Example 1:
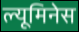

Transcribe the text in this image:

ल्यूमिनेस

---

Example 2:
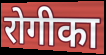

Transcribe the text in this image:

रोगीका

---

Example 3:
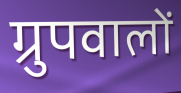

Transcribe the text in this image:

ग्रुपवालों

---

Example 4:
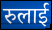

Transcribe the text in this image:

रुलाई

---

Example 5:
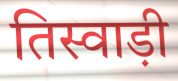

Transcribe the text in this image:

तिस्वाड़ी